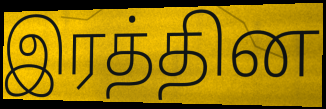
இரத்தின